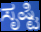
ಸೃಷ್ಟಿ